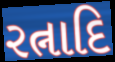
રત્નાદિ